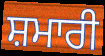
ਸ਼ਮਾਰੀ